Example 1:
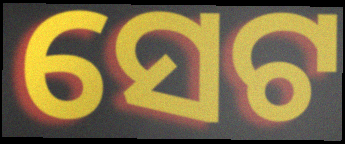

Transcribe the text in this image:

ସେଟ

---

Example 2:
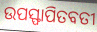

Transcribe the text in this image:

ଉପସ୍ଫାପିତବତୀ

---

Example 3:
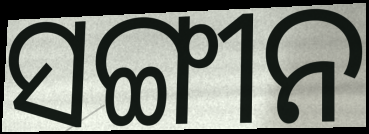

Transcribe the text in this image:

ସଙ୍ଗୀନ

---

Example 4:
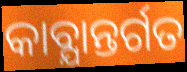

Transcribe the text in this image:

କାବ୍ଯାନ୍ତର୍ଗତ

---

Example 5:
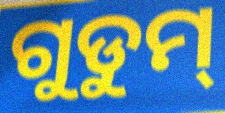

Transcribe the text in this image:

ଗୁଡୁମ୍